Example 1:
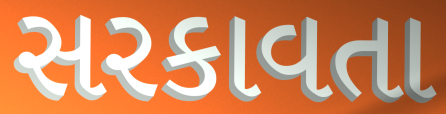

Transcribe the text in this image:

સરકાવતા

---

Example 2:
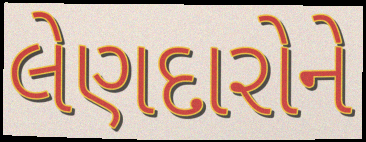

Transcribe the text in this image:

લેણદારોને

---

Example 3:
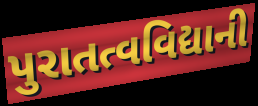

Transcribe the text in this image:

પુરાતત્વવિદ્યાની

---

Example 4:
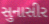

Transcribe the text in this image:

સુનાસીર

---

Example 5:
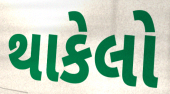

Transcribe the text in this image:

થાકેલો